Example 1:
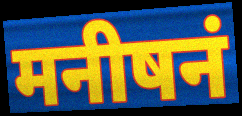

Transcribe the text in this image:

मनीषनं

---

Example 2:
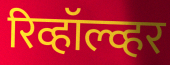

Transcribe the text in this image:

रिव्हॉल्व्हर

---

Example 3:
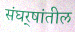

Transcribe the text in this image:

संघर्षांतील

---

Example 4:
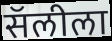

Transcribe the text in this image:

सॅलीला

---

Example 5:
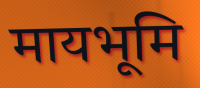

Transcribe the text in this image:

मायभूमि